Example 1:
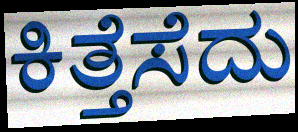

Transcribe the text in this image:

ಕಿತ್ತೆಸೆದು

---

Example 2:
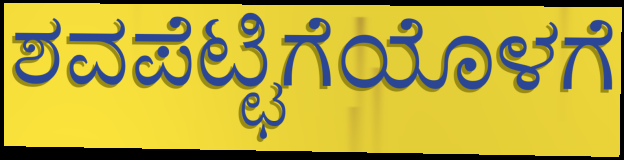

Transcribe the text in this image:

ಶವಪೆಟ್ಟಿಗೆಯೊಳಗೆ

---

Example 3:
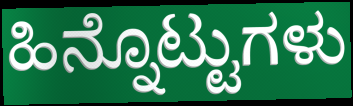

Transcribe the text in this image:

ಹಿನ್ನೊಟ್ಟುಗಳು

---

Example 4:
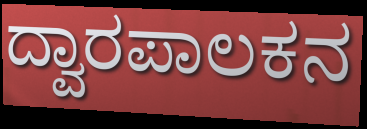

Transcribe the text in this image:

ದ್ವಾರಪಾಲಕನ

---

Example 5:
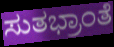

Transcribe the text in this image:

ಸುತಭ್ರಾಂತೆ